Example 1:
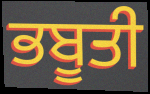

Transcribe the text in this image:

ਭਬੂਤੀ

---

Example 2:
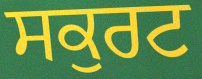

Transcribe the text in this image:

ਸਕੁਰਟ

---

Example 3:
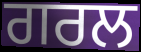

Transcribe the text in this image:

ਗਰਲ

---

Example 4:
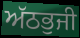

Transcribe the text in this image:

ਅੱਠਭੁਜੀ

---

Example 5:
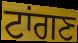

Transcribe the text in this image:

ਟਾਂਗਣ